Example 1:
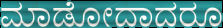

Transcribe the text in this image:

ಮಾಡೋದಾದರೂ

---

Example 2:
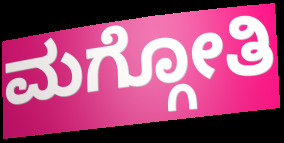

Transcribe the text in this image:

ಮಗ್ಗೋತಿ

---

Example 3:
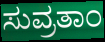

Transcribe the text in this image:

ಸುವ್ರತಾಂ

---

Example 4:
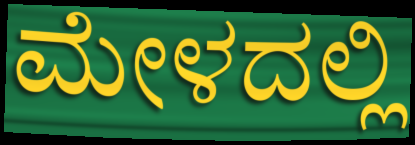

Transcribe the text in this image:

ಮೇಳದಲ್ಲಿ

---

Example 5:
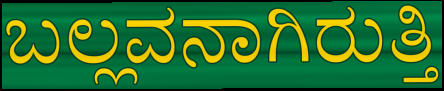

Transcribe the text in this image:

ಬಲ್ಲವನಾಗಿರುತ್ತಿ